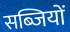
सब्ज़ियों